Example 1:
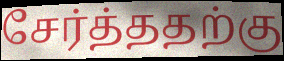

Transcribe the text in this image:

சேர்த்ததற்கு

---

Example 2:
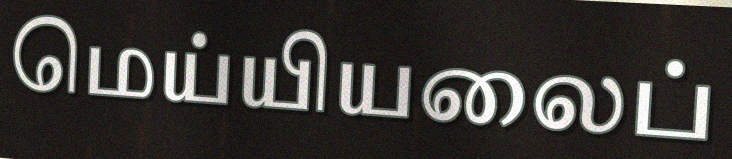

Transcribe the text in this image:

மெய்யியலைப்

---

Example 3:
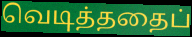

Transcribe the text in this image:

வெடித்ததைப்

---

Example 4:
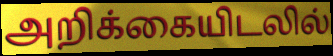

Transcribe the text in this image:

அறிக்கையிடலில்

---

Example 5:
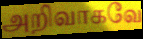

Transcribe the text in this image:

அறிவாகவே